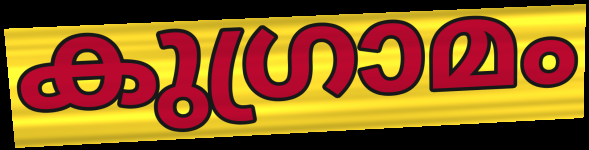
കുഗ്രാമം